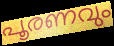
പൂരണവും